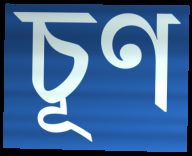
চূণ